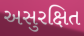
અસુરક્ષિત